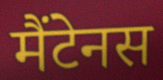
मैंटेनस